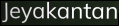
Jeyakantan